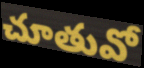
చూతువో